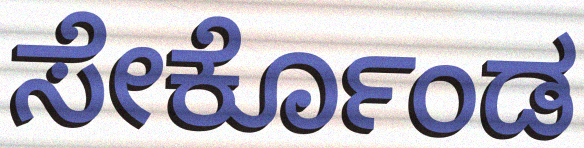
ಸೇರ್ಕೊಂಡ